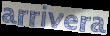
arrivera